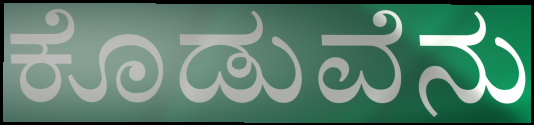
ಕೊಡುವೆನು